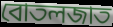
বোতলজাত